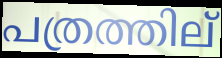
പത്രത്തില്